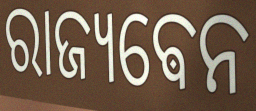
ରାଜ୍ୟଵେନ